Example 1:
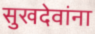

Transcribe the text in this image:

सुखदेवांना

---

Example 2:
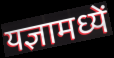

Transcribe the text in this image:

यज्ञामध्यें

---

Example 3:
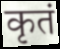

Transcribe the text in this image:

कृतं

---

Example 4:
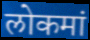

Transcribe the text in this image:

लोकमां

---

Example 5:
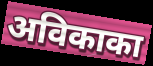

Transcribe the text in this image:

अविकाका